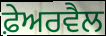
ਫ਼ੇਅਰਵੈਲ